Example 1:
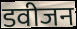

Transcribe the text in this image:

डवीजन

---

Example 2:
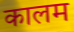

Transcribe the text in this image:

कालम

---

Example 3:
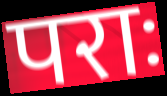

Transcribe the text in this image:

पराः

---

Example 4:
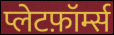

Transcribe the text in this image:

प्लेटफ़ॉर्म्स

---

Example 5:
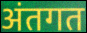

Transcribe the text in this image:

अंतगत